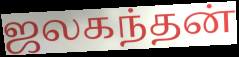
ஜலகந்தன்